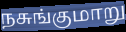
நசுங்குமாறு